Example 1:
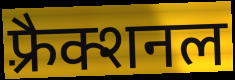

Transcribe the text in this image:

फ़्रैक्शनल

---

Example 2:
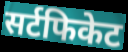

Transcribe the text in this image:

सर्टफिकेट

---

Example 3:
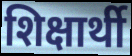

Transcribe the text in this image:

शिक्षार्थी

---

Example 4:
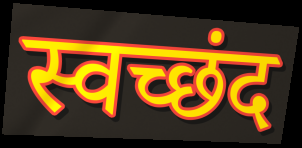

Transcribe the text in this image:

स्वच्छंद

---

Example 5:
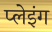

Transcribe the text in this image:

प्लेइंग